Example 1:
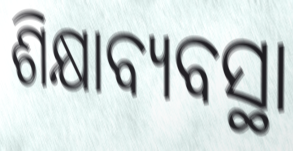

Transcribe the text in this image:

ଶିକ୍ଷାବ୍ୟବସ୍ଥା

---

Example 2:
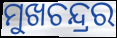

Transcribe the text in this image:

ମୁଖଚନ୍ଦ୍ରର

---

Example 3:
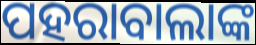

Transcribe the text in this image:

ପହରାବାଲାଙ୍କ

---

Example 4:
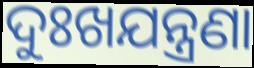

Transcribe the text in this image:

ଦୁଃଖଯନ୍ତ୍ରଣା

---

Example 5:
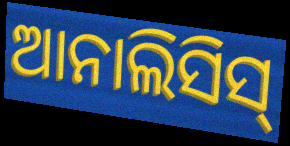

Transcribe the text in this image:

ଆନାଲିସିସ୍